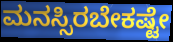
ಮನಸ್ಸಿರಬೇಕಷ್ಟೇ